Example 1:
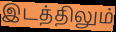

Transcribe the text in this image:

இடத்திலும்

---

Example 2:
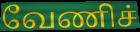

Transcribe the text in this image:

வேணிச்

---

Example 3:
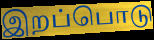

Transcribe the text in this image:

இறப்பொடு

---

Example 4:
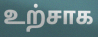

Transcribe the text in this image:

உற்சாக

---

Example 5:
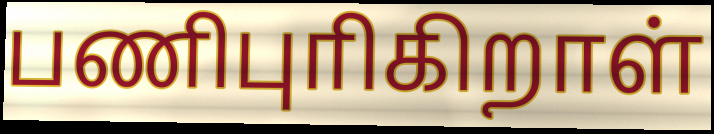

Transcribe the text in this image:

பணிபுரிகிறாள்